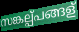
സങ്കല്പ്പങ്ങള്